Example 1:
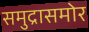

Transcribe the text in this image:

समुद्रासमोर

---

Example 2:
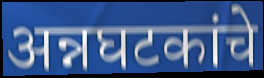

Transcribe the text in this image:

अन्नघटकांचे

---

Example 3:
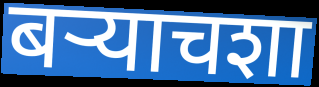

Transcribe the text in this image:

बऱ्याचशा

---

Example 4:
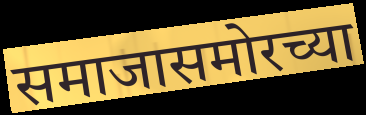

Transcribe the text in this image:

समाजासमोरच्या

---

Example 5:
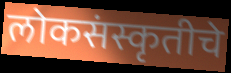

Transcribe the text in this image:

लोकसंस्कृतीचे